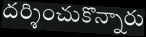
దర్శించుకొన్నారు